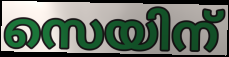
സെയിന്